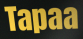
Tapaa